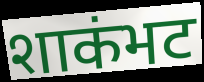
शाकंभट